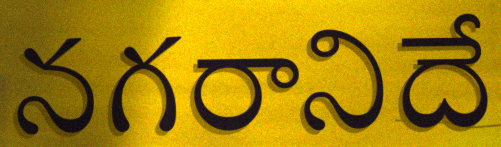
నగరానిదే